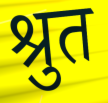
श्रुत